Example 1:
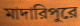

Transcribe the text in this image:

মাদারিপুরে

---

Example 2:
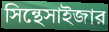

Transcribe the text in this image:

সিন্থেসাইজার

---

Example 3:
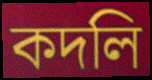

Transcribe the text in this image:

কদলি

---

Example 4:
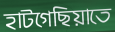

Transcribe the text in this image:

হাটগেছিয়াতে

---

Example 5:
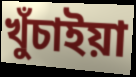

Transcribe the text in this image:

খুঁচাইয়া